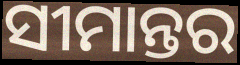
ସୀମାନ୍ତର